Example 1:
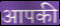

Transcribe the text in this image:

आपकी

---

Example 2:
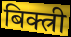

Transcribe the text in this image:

बिक्त्री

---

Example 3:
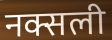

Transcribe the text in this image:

नक्सली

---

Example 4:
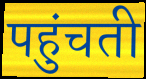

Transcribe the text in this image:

पहुंचती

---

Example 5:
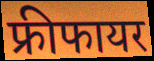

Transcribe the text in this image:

फ्रीफायर